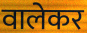
वालेकर